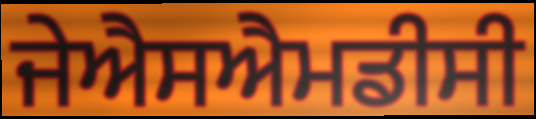
ਜੇਐਸਐਮਡੀਸੀ